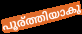
പൂര്ത്തിയാകൂ